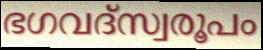
ഭഗവദ്സ്വരൂപം